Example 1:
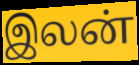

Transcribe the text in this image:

இலன்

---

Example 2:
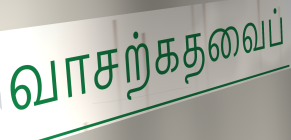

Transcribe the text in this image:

வாசற்கதவைப்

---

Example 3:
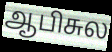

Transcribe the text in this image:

ஆபிசுல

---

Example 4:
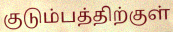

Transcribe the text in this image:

குடும்பத்திற்குள்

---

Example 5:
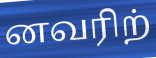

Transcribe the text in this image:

னவரிற்